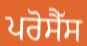
ਪਰੋਸੈੱਸ